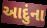
આદુંના